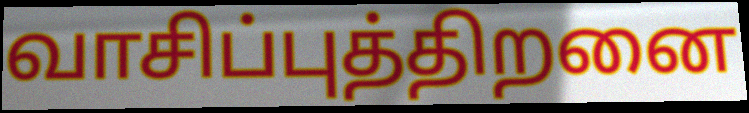
வாசிப்புத்திறனை